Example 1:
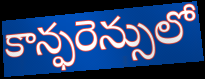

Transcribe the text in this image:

కాన్ఫరెన్సులో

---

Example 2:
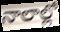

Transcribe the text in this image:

నాలాల్లో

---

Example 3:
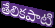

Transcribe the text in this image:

తేలికపాటి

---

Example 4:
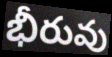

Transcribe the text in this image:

భీరువు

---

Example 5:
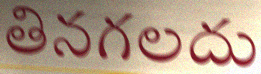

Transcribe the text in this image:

తినగలదు